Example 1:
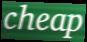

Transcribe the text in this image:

cheap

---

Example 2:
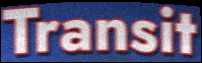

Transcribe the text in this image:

Transit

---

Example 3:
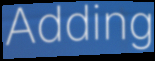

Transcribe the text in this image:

Adding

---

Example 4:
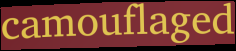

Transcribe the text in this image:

camouflaged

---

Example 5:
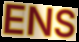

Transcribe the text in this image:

ENS